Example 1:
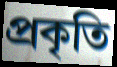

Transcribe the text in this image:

প্ৰকৃতি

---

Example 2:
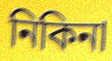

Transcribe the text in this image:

নিকিনা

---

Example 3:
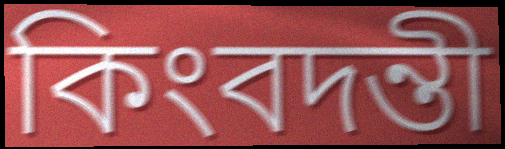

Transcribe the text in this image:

কিংবদন্তী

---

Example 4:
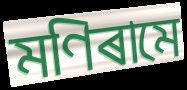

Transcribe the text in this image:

মণিৰামে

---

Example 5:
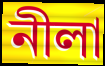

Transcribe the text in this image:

নীলা